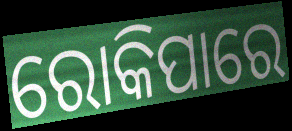
ରୋକିପାରେ